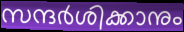
സന്ദർശിക്കാനും